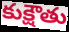
కుక్షౌతు